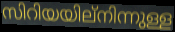
സിറിയയില്നിന്നുള്ള